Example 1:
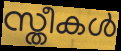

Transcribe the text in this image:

സ്തീകൾ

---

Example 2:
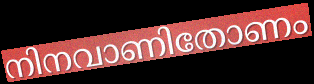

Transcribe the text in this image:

നിനവാണിതോണം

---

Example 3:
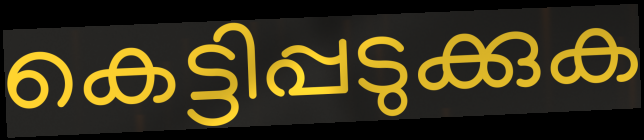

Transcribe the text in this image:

കെട്ടിപ്പടുക്കുക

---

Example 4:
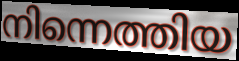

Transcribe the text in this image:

നിന്നെത്തിയ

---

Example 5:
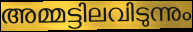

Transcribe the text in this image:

അമ്മട്ടിലവിടുന്നും